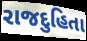
રાજદુહિતા